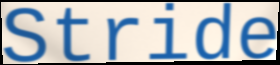
Stride